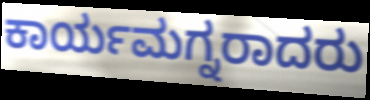
ಕಾರ್ಯಮಗ್ನರಾದರು